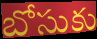
బోసుకు